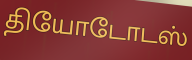
தியோடோடஸ்